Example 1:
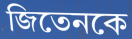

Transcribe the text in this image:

জিতেনকে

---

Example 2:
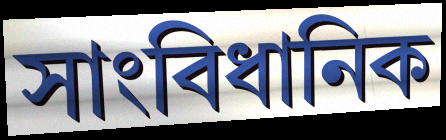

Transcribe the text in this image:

সাংবিধানিক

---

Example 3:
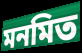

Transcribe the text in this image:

মনমিত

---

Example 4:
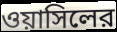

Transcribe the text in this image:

ওয়াসিলের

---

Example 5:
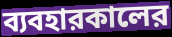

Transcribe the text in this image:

ব্যবহারকালের